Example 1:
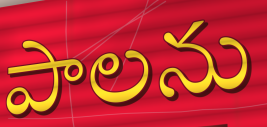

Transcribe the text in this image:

పాలను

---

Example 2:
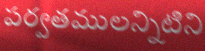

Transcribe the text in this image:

పర్వతములన్నిటిని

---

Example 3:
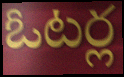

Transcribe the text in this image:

ఓటర్ల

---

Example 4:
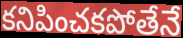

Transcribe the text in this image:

కనిపించకపోతేనే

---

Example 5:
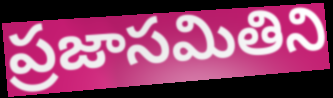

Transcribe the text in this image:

ప్రజాసమితిని